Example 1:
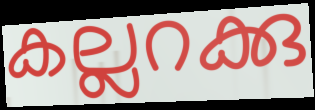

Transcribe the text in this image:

കല്ലറക്കു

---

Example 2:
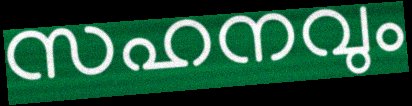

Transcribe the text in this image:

സഹനവും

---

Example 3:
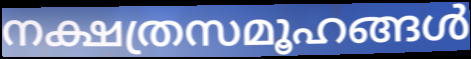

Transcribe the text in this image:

നക്ഷത്രസമൂഹങ്ങൾ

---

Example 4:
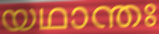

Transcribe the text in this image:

യഥാന്തഃ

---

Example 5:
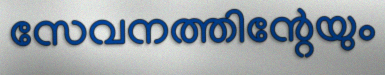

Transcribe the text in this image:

സേവനത്തിന്റേയും